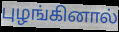
புழங்கினால்